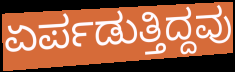
ಏರ್ಪಡುತ್ತಿದ್ದವು